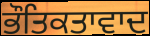
ਭੌਤਿਕਤਾਵਾਦ